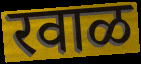
रवाळ